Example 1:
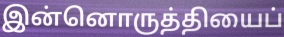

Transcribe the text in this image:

இன்னொருத்தியைப்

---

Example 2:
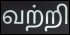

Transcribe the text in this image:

வற்றி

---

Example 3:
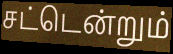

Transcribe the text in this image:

சட்டென்றும்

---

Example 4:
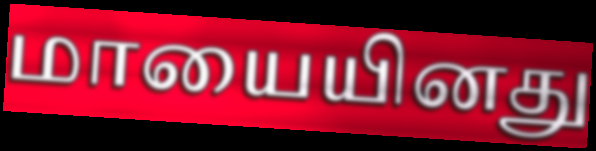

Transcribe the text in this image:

மாயையினது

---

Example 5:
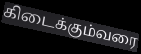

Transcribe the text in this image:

கிடைக்கும்வரை